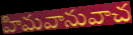
హిమవానువాచ